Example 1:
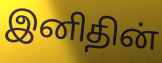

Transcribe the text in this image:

இனிதின்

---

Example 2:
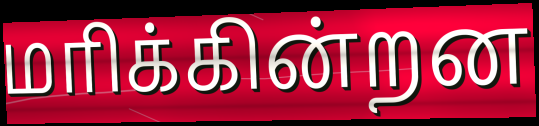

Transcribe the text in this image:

மரிக்கின்றன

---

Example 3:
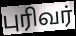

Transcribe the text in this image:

புரிவர்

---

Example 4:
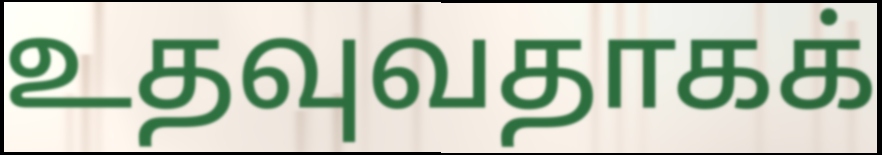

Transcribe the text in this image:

உதவுவதாகக்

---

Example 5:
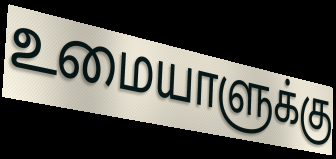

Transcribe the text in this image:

உமையாளுக்கு